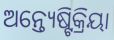
ଅନ୍ତ୍ୟେଷ୍ଟିକ୍ରିୟା